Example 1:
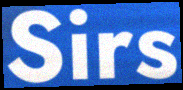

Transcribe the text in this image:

Sirs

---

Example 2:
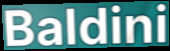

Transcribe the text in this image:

Baldini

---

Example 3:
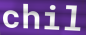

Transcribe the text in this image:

chil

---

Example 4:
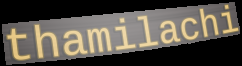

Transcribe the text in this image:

thamilachi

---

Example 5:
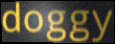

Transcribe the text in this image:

doggy